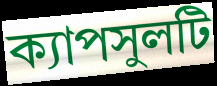
ক্যাপসুলটি